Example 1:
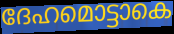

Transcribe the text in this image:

ദേഹമൊട്ടാകെ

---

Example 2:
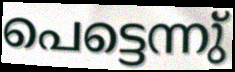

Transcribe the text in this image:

പെട്ടെന്നു്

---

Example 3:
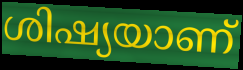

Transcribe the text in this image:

ശിഷ്യയാണ്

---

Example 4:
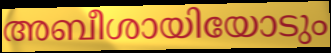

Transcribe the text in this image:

അബീശായിയോടും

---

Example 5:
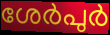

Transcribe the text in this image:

ശേർപുർ